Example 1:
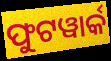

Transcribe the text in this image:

ଫୁଟୱାର୍କ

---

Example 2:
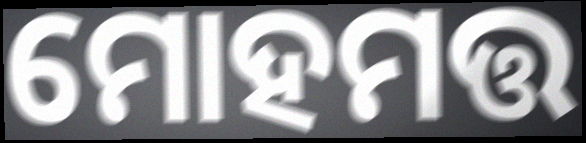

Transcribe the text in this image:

ମୋହମତ୍ତ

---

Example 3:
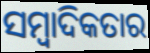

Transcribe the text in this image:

ସମ୍ୱାଦିକତାର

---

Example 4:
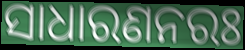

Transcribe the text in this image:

ସାଧାରଣନରଃ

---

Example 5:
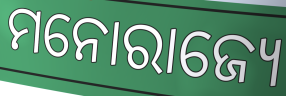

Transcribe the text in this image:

ମନୋରାଜ୍ୟେ